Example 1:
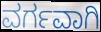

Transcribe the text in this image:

ವರ್ಗವಾಗಿ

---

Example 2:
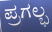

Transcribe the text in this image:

ಪ್ರಗಲ್ಭ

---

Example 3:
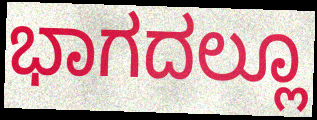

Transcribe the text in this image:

ಭಾಗದಲ್ಲೂ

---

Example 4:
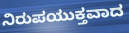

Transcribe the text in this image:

ನಿರುಪಯುಕ್ತವಾದ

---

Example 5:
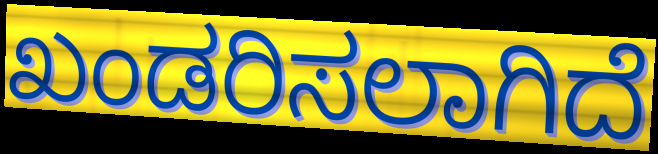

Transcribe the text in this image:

ಖಂಡರಿಸಲಾಗಿದೆ